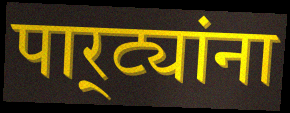
पार्ट्यांना